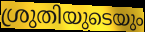
ശ്രുതിയുടെയും